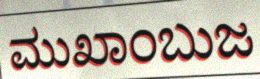
ಮುಖಾಂಬುಜ